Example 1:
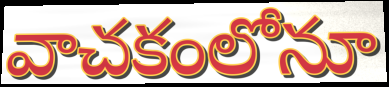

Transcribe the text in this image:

వాచకంలోనూ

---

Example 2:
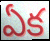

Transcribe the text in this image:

ఏక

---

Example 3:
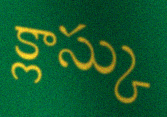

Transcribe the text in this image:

క్లాస్కు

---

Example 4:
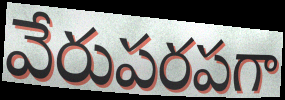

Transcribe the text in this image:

వేరుపరపగా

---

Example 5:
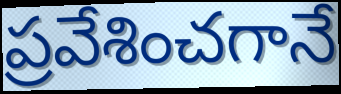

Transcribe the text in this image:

ప్రవేశించగానే